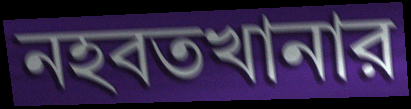
নহবতখানার